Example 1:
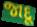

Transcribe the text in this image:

જાદૂ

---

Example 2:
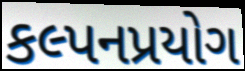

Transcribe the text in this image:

કલ્પનપ્રયોગ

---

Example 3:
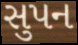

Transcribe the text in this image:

સુપન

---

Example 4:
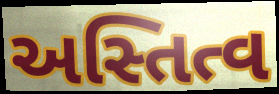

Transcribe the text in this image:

અસ્તિત્વ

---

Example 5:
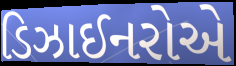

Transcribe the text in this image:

ડિઝાઈનરોએ